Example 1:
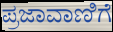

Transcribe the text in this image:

ಪ್ರಜಾವಾಣಿಗೆ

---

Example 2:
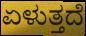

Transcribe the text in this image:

ಏಳುತ್ತದೆ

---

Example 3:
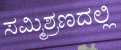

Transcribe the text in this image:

ಸಮ್ಮಿಶ್ರಣದಲ್ಲಿ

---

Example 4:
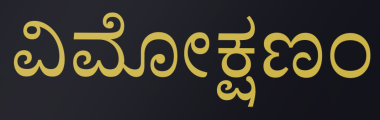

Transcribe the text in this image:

ವಿಮೋಕ್ಷಣಂ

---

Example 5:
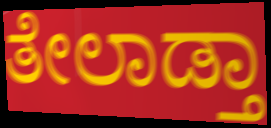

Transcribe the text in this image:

ತೇಲಾಡ್ತಾ